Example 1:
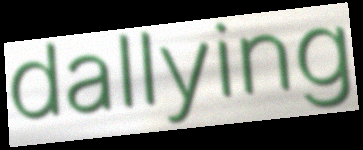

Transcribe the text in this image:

dallying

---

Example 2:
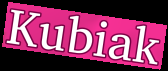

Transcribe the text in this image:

Kubiak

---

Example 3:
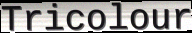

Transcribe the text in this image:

Tricolour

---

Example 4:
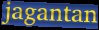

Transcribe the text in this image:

jagantan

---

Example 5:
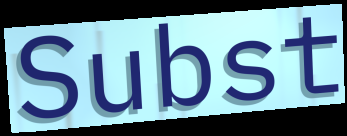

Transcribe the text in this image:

Subst